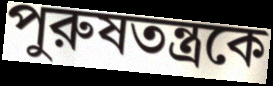
পুরুষতন্ত্রকে